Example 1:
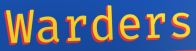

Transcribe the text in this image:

Warders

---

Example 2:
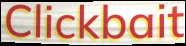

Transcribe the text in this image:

Clickbait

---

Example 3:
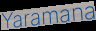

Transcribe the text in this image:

Yaramana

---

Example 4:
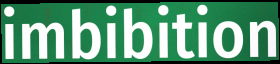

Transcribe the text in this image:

imbibition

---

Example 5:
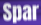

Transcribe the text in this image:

Spar